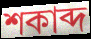
শকাব্দ